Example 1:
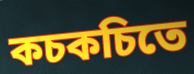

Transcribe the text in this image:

কচকচিতে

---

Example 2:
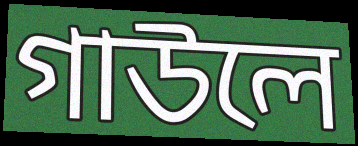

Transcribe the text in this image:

গাউলে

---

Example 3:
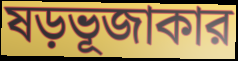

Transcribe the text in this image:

ষড়ভূজাকার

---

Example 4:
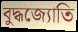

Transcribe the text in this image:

বুদ্ধজ্যোতি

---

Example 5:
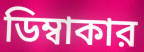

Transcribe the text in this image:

ডিম্বাকার